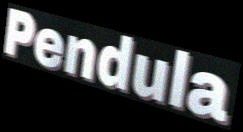
Pendula